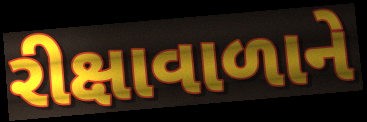
રીક્ષાવાળાને